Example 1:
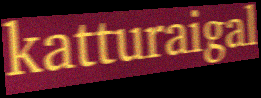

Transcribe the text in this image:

katturaigal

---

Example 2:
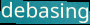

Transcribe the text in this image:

debasing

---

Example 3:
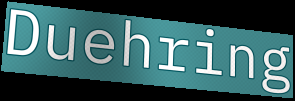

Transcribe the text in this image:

Duehring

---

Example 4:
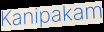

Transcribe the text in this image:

Kanipakam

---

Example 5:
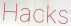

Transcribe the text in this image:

Hacks